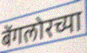
बेंगलोरच्या